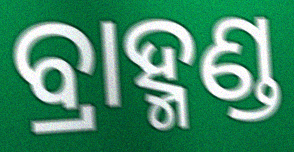
ବ୍ରାହ୍ମଣ୍ଡ